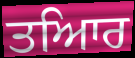
ਤਆਿਰ